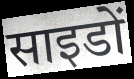
साइडों